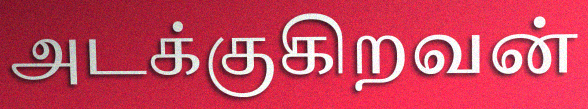
அடக்குகிறவன்